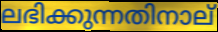
ലഭിക്കുന്നതിനാല്